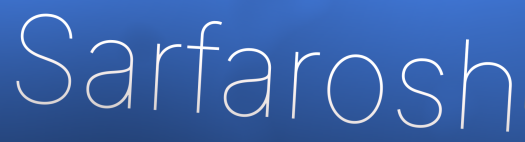
Sarfarosh